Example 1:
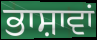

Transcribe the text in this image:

ਭਾਸ਼ਾਵਾਂ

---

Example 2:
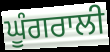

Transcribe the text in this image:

ਘੂੰਗਰਾਲੀ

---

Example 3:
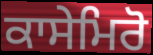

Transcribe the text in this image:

ਕਾਸੇਮਿਰੋ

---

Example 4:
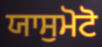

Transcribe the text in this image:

ਯਾਸੁਮੋਟੋ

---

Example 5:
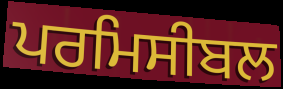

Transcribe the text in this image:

ਪਰਮਿਸੀਬਲ